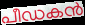
പീഡകൻ